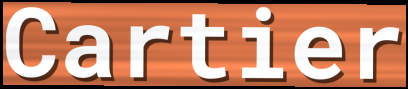
Cartier